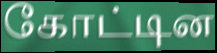
கோட்டின